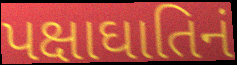
પક્ષાઘાતિનં